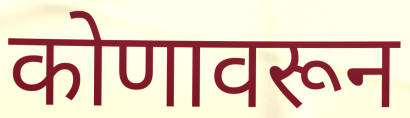
कोणावरून